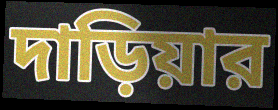
দাড়িয়ার